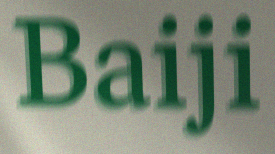
Baiji